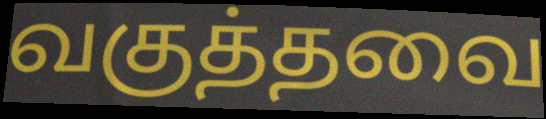
வகுத்தவை